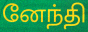
னேந்தி